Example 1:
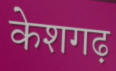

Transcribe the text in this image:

केशगढ़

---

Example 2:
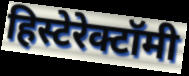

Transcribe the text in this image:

हिस्टेरेक्टॉमी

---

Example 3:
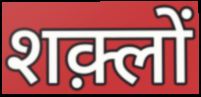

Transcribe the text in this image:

शक़्लों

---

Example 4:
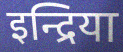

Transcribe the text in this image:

इन्द्रिया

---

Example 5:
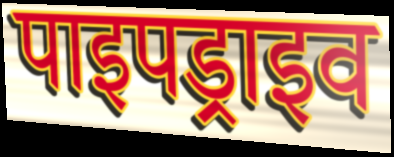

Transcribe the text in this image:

पाइपड्राइव